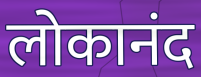
लोकानंद